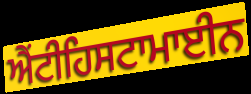
ਐਂਟੀਹਿਸਟਾਮਾਈਨ